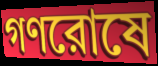
গণরোষে